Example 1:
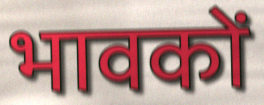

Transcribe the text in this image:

भावकों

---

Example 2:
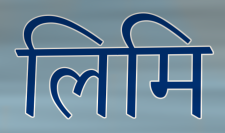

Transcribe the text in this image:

लिमि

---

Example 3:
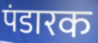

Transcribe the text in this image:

पंडारक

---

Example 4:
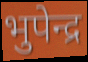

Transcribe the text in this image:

भुपेन्द्र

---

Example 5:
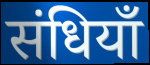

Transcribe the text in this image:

संधियाँ